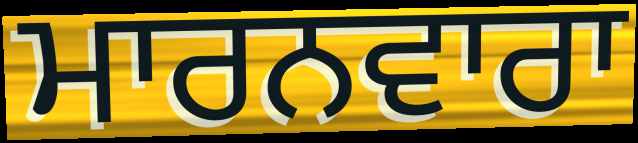
ਮਾਰਨਵਾਰਾ